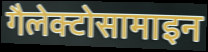
गैलेक्टोसामाइन